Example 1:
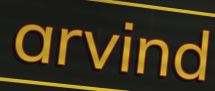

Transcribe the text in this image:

arvind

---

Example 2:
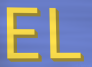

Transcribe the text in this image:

EL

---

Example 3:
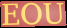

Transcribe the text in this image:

EOU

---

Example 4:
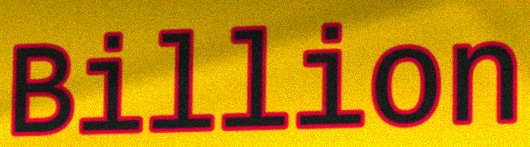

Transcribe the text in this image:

Billion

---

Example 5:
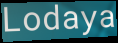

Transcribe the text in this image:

Lodaya